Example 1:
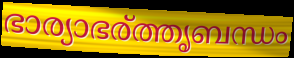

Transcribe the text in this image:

ഭാര്യാഭര്ത്തൃബന്ധം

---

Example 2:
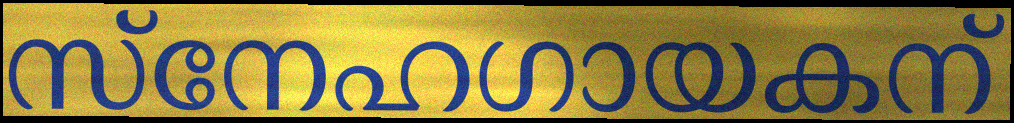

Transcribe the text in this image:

സ്നേഹഗായകന്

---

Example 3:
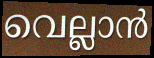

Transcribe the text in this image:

വെല്ലാൻ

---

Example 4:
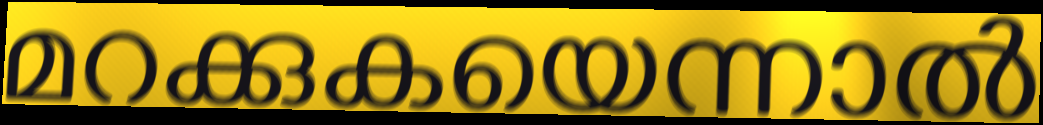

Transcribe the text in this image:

മറക്കുകയെന്നാൽ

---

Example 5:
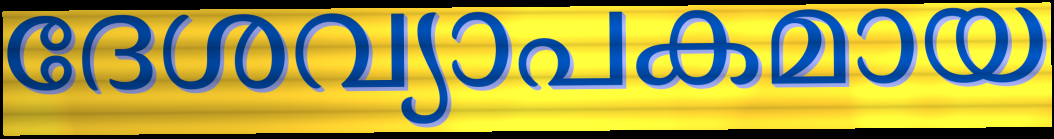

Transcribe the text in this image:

ദേശവ്യാപകമായ